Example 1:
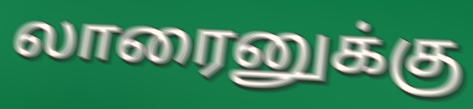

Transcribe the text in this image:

லாரைனுக்கு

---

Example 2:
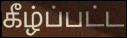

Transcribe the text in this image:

கீழ்ப்பட்ட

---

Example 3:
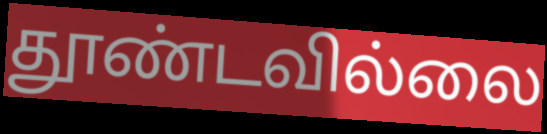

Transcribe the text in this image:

தூண்டவில்லை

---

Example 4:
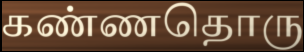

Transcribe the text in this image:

கண்ணதொரு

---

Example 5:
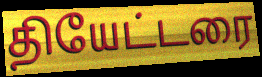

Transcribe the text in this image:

தியேட்டரை